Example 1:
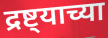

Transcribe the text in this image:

द्रष्ट्याच्या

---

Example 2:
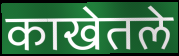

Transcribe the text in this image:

काखेतले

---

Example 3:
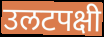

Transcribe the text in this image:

उलटपक्षी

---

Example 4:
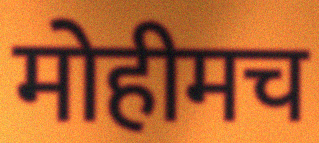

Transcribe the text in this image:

मोहीमच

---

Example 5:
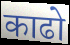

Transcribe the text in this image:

काढो